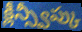
క్లీన్స్వీప్కు